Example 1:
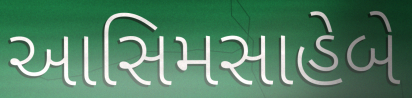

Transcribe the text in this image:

આસિમસાહેબે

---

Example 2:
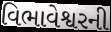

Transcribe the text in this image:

વિભાવેશ્વરની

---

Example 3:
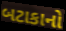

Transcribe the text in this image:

બટાકાનો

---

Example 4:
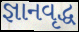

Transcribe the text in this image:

જ્ઞાનવૃદ્ધ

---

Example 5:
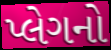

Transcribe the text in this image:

પ્લેગનો